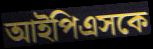
আইপিএসকে